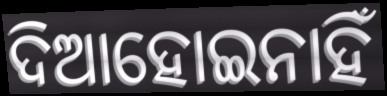
ଦିଆହୋଇନାହିଁ